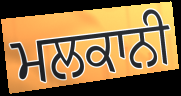
ਮਲਕਾਨੀ